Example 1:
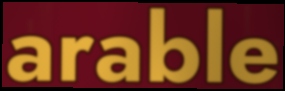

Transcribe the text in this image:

arable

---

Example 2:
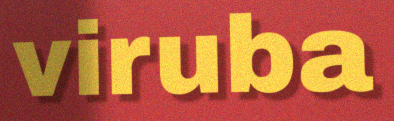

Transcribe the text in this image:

viruba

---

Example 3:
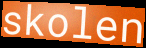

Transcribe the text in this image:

skolen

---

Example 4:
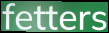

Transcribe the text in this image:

fetters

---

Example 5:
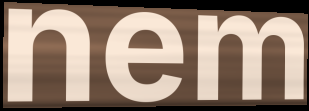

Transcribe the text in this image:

nem